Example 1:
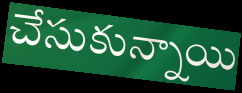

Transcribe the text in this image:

చేసుకున్నాయి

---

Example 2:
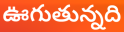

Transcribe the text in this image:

ఊగుతున్నది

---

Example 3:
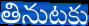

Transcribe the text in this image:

తినుటకు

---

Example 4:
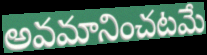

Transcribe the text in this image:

అవమానించటమే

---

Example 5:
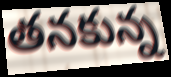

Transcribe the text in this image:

తనకున్న